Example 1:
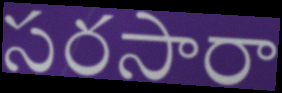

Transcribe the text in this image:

సరసారా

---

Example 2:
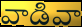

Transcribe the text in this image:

వాడివా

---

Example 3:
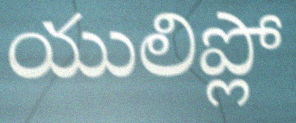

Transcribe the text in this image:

యులిప్లో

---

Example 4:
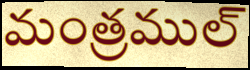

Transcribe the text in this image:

మంత్రముల్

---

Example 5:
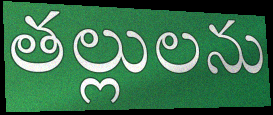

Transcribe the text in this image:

తల్లులను